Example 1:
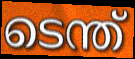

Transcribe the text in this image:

ടെന്ത്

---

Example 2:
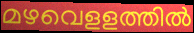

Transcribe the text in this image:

മഴവെളളത്തിൽ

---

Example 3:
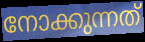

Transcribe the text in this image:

നോക്കുന്നത്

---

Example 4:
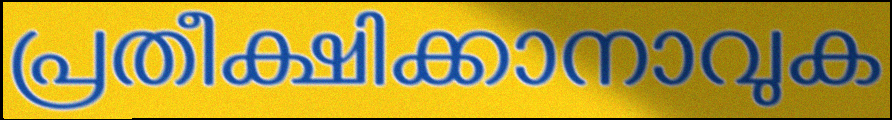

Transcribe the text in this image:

പ്രതീക്ഷിക്കാനാവുക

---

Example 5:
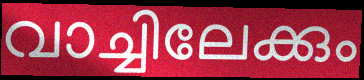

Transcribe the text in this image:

വാച്ചിലേക്കും